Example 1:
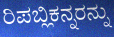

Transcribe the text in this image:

ರಿಪಬ್ಲಿಕನ್ನರನ್ನು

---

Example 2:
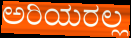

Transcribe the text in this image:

ಅರಿಯರಲ್ಲ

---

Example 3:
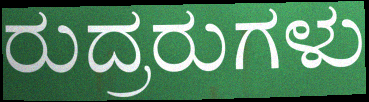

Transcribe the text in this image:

ರುದ್ರರುಗಳು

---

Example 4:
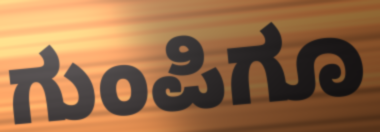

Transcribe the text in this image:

ಗುಂಪಿಗೂ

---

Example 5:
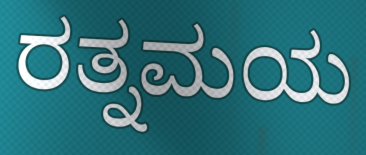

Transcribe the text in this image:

ರತ್ನಮಯ